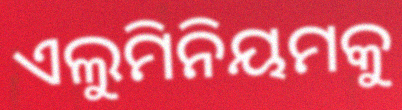
ଏଲୁମିନିୟମକୁ